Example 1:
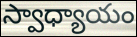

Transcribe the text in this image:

స్వాధ్యాయం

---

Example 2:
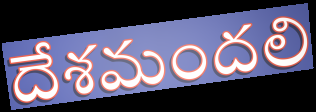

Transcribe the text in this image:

దేశమందలి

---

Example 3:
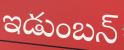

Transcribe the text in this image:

ఇడుంబన్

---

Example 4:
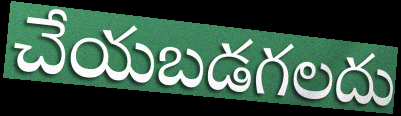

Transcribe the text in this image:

చేయబడగలదు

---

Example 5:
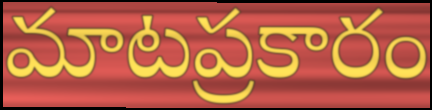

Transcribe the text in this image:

మాటప్రకారం